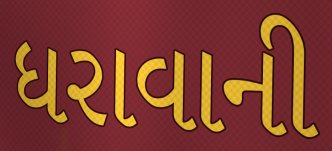
ધરાવાની